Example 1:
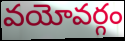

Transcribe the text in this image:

వయోవర్గం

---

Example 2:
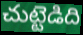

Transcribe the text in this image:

చుట్టెడిది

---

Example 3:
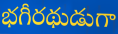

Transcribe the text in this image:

భగీరథుడుగా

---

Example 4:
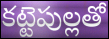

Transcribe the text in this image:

కట్టెపుల్లతో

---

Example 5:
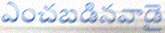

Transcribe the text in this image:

ఎంచబడినవాడై